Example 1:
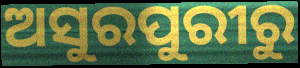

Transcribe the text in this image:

ଅସୁରପୁରୀରୁ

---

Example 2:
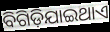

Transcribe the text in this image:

ବିଗିଡ଼ିଯାଇଥାଏ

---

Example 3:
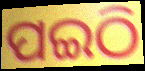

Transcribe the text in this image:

ପଇଠି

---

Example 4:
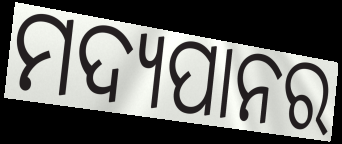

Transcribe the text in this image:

ମଦ୍ୟପାନର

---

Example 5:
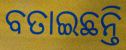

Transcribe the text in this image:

ବତାଇଛନ୍ତି